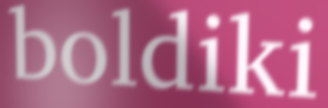
boldiki